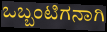
ಒಬ್ಬಂಟಿಗನಾಗಿ